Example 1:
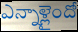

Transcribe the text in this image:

ఎన్నాళ్లైందో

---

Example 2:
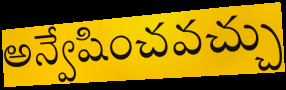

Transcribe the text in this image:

అన్వేషించవచ్చు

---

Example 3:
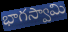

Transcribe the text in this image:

భాగస్వామి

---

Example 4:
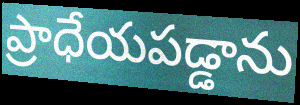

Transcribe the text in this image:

ప్రాధేయపడ్డాను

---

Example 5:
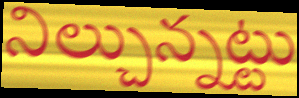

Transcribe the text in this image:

నిల్చున్నట్టు